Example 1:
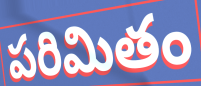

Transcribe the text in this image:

పరిమితం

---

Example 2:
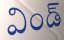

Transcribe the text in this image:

విండ్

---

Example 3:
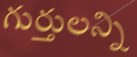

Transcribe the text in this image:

గుర్తులన్ని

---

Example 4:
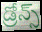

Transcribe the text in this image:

డ్రోన్స్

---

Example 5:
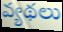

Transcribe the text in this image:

వ్యథలు